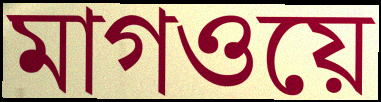
মাগওয়ে